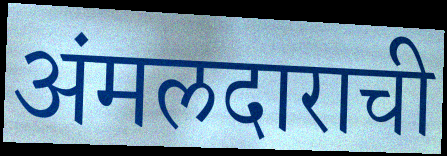
अंमलदाराची